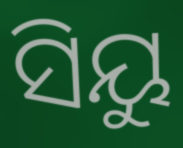
ସିୟୁ